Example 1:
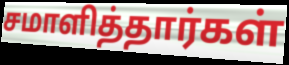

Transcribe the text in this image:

சமாளித்தார்கள்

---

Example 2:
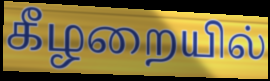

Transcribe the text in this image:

கீழறையில்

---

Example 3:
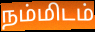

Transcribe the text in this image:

நம்மிடம்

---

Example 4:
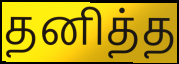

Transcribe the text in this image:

தனித்த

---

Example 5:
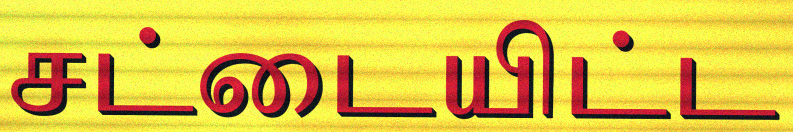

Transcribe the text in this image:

சட்டையிட்ட